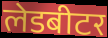
लेडबीटर